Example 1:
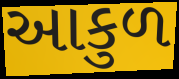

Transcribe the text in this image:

આકુળ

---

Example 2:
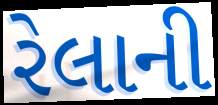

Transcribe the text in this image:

રેલાની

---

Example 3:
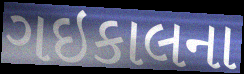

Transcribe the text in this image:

ગઇકાલના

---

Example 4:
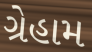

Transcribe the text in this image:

ગ્રેહામ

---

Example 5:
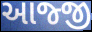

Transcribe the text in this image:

આજ્જી